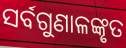
ସର୍ବଗୁଣାଳଙ୍କୃତ